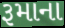
રૂમાના